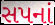
સપનાં